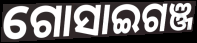
ଗୋସାଇଗଞ୍ଜ